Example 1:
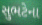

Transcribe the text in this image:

સુભટેના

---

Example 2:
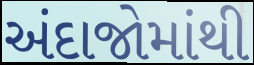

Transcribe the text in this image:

અંદાજોમાંથી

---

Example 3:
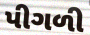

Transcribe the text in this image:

પીગળી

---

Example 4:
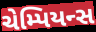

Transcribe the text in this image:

ચેમ્પિયન્સ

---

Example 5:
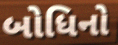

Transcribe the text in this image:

બોધિનો